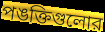
পঙক্তিগুলোর